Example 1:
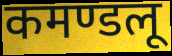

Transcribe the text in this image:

कमण्डलू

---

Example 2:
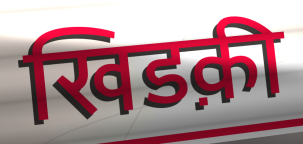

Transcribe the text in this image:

खिडक़ी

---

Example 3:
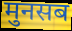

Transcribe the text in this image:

मुनसब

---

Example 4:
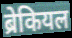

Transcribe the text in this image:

ब्रेकियल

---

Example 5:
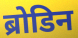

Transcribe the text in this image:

ब्रोडिन